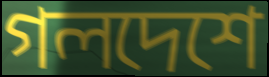
গলদেশে